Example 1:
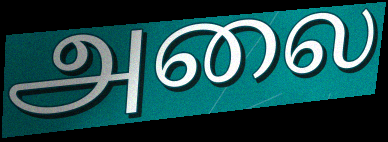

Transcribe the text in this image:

அலை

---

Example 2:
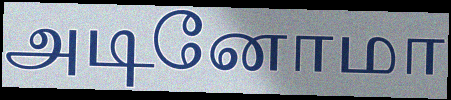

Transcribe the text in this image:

அடினோமா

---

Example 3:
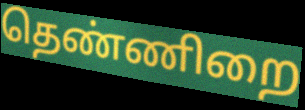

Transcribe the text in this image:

தெண்ணிறை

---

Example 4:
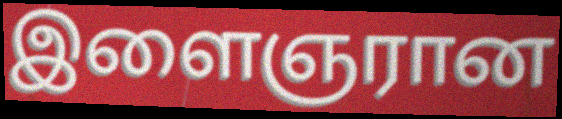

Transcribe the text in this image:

இளைஞரான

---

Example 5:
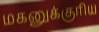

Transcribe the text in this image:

மகனுக்குரிய